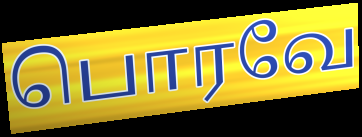
பொரவே